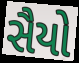
સૈયો